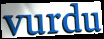
vurdu